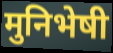
मुनिभेषी